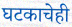
घटकाचेही